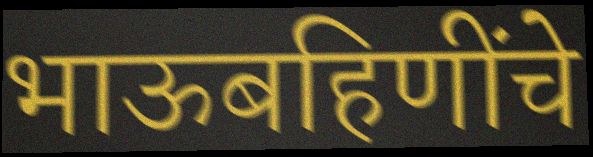
भाऊबहिणींचे